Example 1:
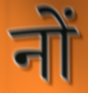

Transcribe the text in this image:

नों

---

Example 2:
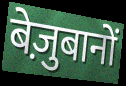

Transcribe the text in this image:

बेज़ुबानों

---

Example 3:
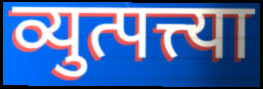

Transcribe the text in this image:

व्युत्पत्त्या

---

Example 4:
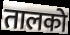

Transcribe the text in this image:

तालको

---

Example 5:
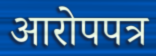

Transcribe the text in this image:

आरोपपत्र